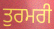
ਤੁਰਮਰੀ